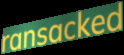
ransacked